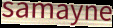
samayne